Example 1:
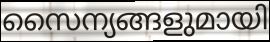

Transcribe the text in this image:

സൈന്യങ്ങളുമായി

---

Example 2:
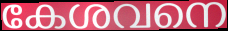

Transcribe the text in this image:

കേശവനെ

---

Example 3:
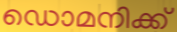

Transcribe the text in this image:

ഡൊമനിക്ക്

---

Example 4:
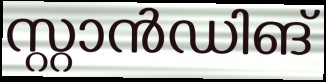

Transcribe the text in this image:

സ്റ്റാൻഡിങ്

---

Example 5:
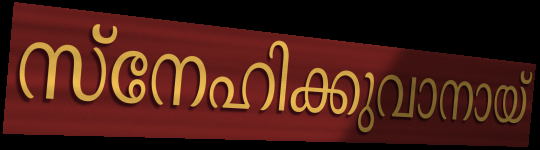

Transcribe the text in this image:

സ്നേഹിക്കുവാനായ്